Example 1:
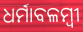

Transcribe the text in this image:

ଧର୍ମାବଳମ୍ବୀ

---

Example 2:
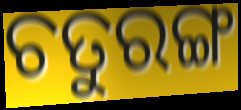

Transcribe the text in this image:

ଚତୁରଙ୍ଗ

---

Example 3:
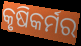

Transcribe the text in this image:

କୃଷିକର୍ମର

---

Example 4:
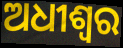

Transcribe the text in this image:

ଅଧୀଶ୍ୱର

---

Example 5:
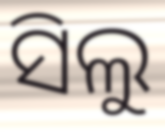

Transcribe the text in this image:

ସିଲୁ